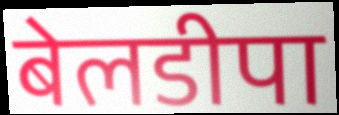
बेलडीपा